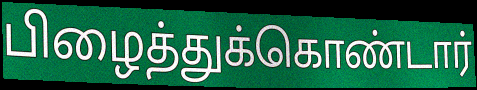
பிழைத்துக்கொண்டார்